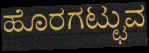
ಹೊರಗಟ್ಟುವ